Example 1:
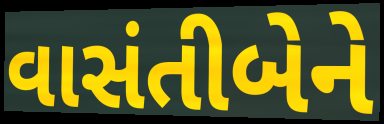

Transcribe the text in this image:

વાસંતીબેને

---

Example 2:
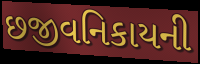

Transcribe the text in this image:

છજીવનિકાયની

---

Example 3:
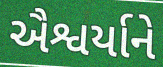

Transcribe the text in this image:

ઐશ્વર્યાને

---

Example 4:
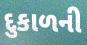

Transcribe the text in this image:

દુકાળની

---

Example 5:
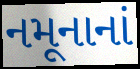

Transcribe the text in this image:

નમૂનાનાં